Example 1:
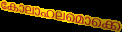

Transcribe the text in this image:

കോലാഹലമൊക്കെ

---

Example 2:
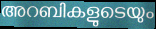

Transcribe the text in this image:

അറബികളുടെയും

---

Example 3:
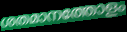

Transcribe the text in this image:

ശതമാനത്തോളം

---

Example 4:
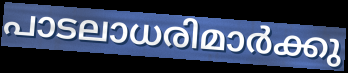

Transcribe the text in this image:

പാടലാധരിമാർക്കു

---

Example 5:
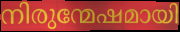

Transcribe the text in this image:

നിരുന്മേഷമായി